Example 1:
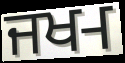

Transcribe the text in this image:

ਜਖ੍ਮ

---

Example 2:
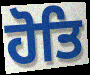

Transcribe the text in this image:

ਹੋਤਿ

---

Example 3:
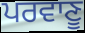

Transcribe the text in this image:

ਪਰਵਾਣੂ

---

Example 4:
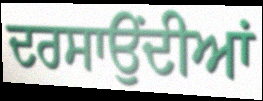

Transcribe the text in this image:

ਦਰਸਾਉਂਦੀਆਂ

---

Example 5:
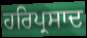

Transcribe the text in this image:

ਹਰਿਪ੍ਰਸਾਦ